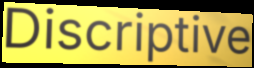
Discriptive